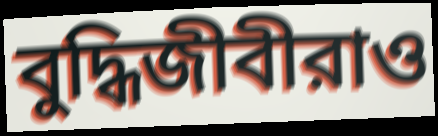
বুদ্ধিজীবীরাও